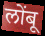
लोंबू